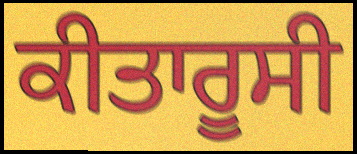
ਕੀਤਾਰੂਸੀ